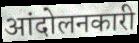
आंदोलनकारी